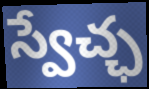
స్వేచ్ఛ